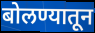
बोलण्यातून